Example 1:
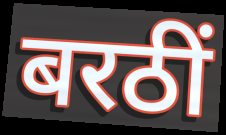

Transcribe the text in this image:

बरठीं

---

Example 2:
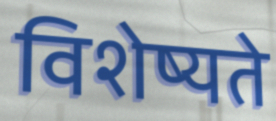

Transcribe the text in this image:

विशेष्यते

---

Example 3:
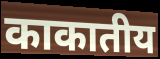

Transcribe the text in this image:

काकातीय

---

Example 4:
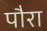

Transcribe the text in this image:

पौरा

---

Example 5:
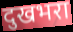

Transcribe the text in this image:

दुखभरा